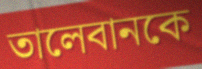
তালেবানকে